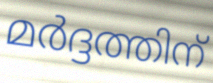
മർദ്ദത്തിന്